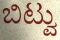
ಬಿಟ್ವು